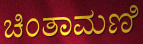
ಚಿಂತಾಮಣಿ